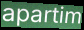
apartim